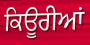
ਕਿਊਰੀਆਂ